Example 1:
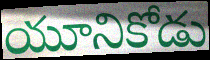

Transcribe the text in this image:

యూనికోడు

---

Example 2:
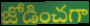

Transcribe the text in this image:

జోడించగా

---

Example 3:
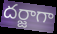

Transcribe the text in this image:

దర్జాగా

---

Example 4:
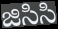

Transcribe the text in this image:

జిసిసి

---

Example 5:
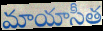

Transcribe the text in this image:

మాయాసీత